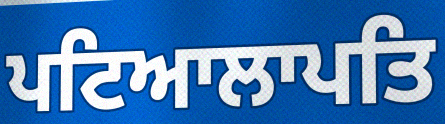
ਪਟਿਆਲਾਪਤਿ